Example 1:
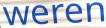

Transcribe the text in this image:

weren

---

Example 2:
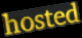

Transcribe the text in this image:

hosted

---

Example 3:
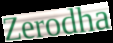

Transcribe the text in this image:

Zerodha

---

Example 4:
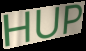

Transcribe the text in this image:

HUP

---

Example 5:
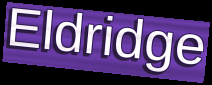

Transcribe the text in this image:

Eldridge